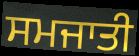
ਸਮਜਾਤੀ